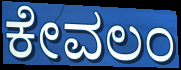
ಕೇವಲಂ